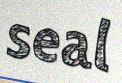
seal